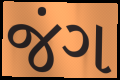
જંગ